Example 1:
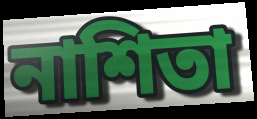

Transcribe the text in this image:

নাশিতা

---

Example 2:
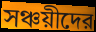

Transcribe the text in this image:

সঞ্চয়ীদের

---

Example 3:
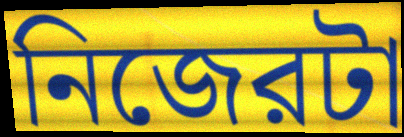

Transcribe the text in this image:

নিজেরটা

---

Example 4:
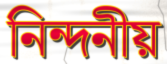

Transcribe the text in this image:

নিন্দনীয়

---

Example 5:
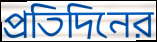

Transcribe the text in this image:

প্রতিদিনের